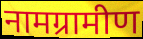
नामग्रामीण